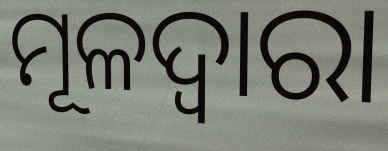
ମୂଳଦ୍ଵାରା